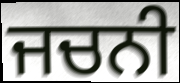
ਜਚਨੀ